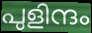
പുളിന്ദം